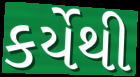
કર્યેથી